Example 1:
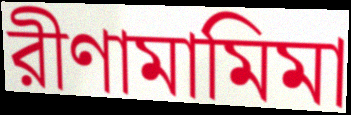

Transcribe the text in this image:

রীণামামিমা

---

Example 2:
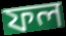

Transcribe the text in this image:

ফল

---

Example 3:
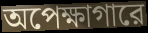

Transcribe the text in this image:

অপেক্ষাগারে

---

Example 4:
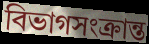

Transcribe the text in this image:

বিভাগসংক্রান্ত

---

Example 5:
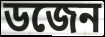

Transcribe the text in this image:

ডজেন